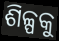
ଶିଳ୍ପକୁ